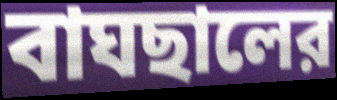
বাঘছালের